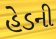
હેડની